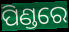
ପିଣ୍ଡରେ